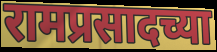
रामप्रसादच्या